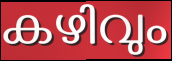
കഴിവും